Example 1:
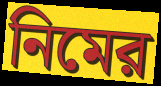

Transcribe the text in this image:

নিমের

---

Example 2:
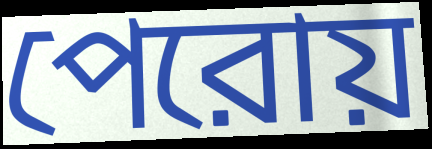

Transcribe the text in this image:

পেরোয়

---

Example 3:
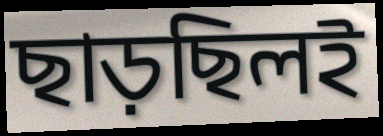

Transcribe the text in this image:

ছাড়ছিলই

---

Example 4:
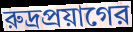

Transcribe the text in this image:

রুদ্রপ্রয়াগের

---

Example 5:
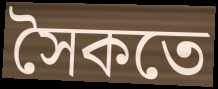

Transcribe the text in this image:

সৈকতে